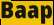
Baap